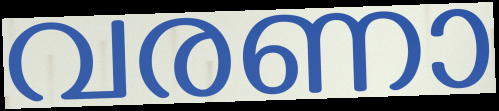
വരണാ